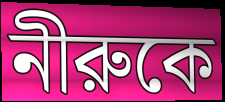
নীরুকে